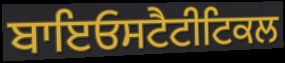
ਬਾਇਓਸਟੈਟੀਟਿਕਲ